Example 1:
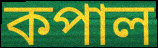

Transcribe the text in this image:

কপাল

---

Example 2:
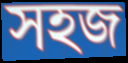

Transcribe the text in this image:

সহজ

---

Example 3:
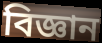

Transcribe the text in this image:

বিজ্ঞান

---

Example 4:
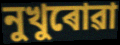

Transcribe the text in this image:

নুখুৰোৱা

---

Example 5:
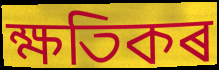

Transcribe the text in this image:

ক্ষতিকৰ